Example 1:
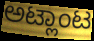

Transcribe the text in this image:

ಅಟ್ಲಾಂಟ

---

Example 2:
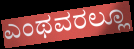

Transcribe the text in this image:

ಎಂಥವರಲ್ಲೂ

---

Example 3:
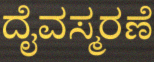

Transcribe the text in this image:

ದೈವಸ್ಮರಣೆ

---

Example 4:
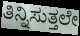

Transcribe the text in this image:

ತಿನ್ನಿಸುತ್ತಲೇ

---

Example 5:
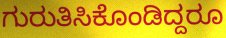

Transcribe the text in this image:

ಗುರುತಿಸಿಕೊಂಡಿದ್ದರೂ